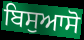
ਬਿਸੁਆਸੋ